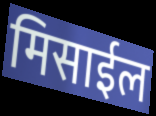
मिसाईल